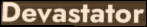
Devastator